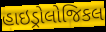
હાઇડ્રોલોજિકલ